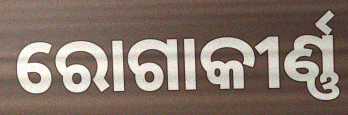
ରୋଗାକୀର୍ଣ୍ଣ